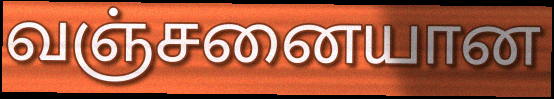
வஞ்சனையான